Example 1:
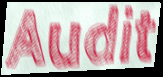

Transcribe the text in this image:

Audit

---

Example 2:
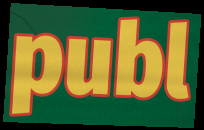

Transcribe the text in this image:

publ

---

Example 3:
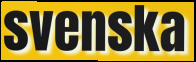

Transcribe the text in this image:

svenska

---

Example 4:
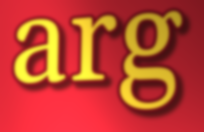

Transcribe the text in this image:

arg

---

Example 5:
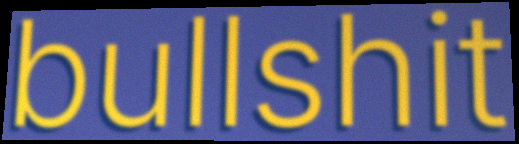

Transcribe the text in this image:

bullshit